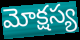
మోక్షస్య